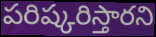
పరిష్కరిస్తారని